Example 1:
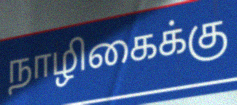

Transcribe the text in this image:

நாழிகைக்கு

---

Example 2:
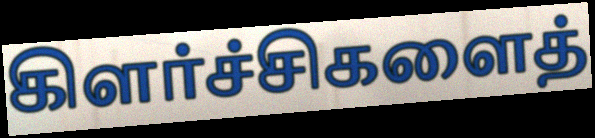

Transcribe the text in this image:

கிளர்ச்சிகளைத்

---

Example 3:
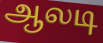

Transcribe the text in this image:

ஆலடி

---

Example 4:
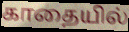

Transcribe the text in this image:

காதையில்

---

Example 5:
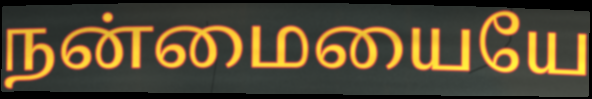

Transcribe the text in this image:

நன்மையையே